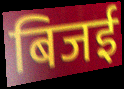
बिजई